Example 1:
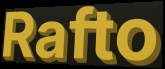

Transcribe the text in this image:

Rafto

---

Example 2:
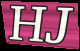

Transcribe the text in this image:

HJ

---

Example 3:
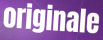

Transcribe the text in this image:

originale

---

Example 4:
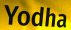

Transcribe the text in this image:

Yodha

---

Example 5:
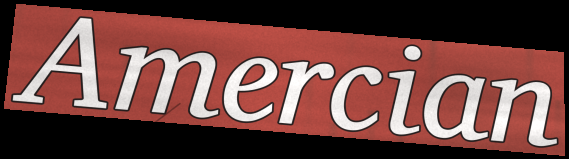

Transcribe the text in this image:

Amercian